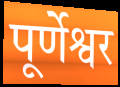
पूर्णेश्वर